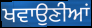
ਖਵਾਉਣੀਆਂ